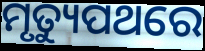
ମୃତ୍ୟୁପଥରେ